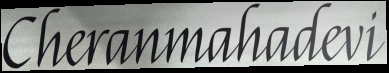
Cheranmahadevi